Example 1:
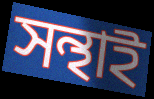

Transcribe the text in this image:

সন্থাই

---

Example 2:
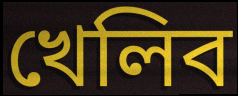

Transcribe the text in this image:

খেলিব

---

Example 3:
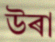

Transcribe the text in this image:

উৰা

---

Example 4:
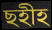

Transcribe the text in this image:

ছহীহ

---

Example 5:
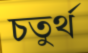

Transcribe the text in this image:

চতুৰ্থ